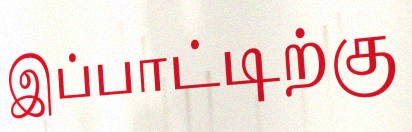
இப்பாட்டிற்கு